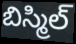
బిస్మిల్